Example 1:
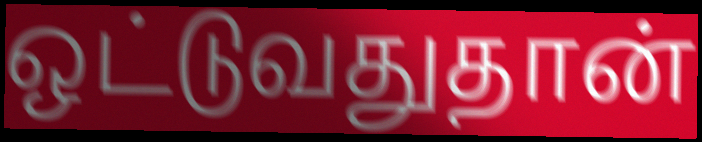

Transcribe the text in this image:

ஒட்டுவதுதான்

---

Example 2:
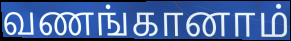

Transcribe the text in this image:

வணங்கானாம்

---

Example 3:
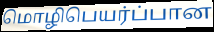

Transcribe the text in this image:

மொழிபெயர்ப்பான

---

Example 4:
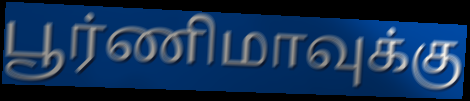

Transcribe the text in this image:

பூர்ணிமாவுக்கு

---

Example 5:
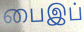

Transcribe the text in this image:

பைஇப்